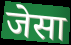
जेसा